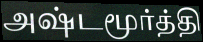
அஷ்டமூர்த்தி